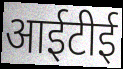
आईटीई